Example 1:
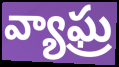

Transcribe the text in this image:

వ్యాఘ్ర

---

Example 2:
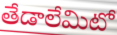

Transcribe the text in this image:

తేడాలేమిటో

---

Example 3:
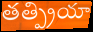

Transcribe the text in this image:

తత్ప్రియా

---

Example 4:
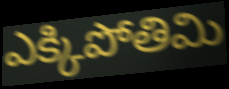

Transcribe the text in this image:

ఎక్కిపోతిమి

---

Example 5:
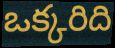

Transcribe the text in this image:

ఒక్కరిది